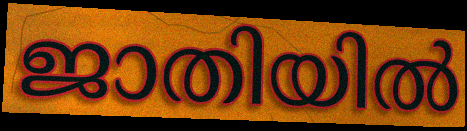
ജാതിയിൽ